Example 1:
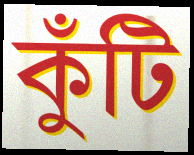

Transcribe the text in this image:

কুঁটি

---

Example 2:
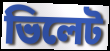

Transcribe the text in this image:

ভিলেট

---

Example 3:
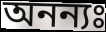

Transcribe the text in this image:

অনন্যঃ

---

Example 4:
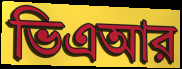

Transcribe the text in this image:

ভিএআর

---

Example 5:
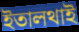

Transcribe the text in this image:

ইতালথাই